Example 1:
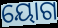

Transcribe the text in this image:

ୟୋଗ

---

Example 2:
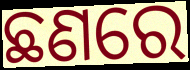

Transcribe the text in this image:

ଛଣରେ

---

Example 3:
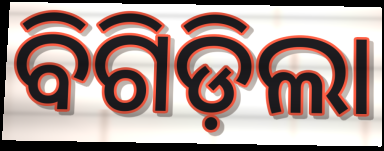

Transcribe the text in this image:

ବିଗିଡ଼ିଲା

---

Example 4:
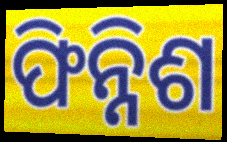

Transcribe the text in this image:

ଫିନ୍ନିଶ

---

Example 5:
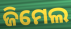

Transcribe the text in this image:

ଜିମେଲ